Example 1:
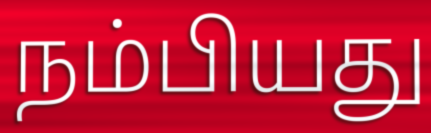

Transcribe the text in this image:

நம்பியது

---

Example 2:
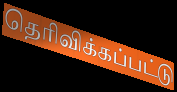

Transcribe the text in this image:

தெரிவிக்கப்பட்டு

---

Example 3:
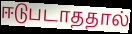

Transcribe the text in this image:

ஈடுபடாததால்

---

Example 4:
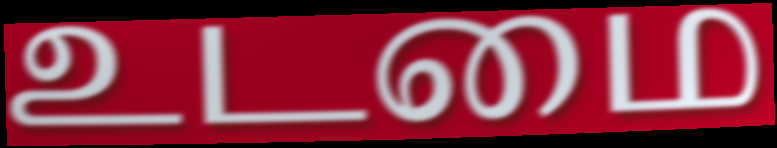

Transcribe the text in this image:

உடமை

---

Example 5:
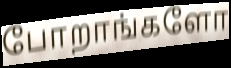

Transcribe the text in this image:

போறாங்களோ